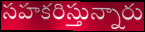
సహకరిస్తున్నారు